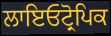
ਲਾਇਓਟ੍ਰੋਪਿਕ